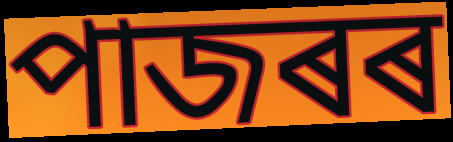
পাজৰৰ